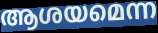
ആശയമെന്ന